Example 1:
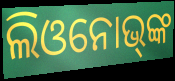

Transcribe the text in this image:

ଲିଓନୋଭ୍‌ଙ୍କ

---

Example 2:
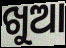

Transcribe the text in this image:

ଖୁଆ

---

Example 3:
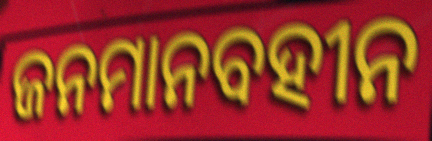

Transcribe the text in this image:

ଜନମାନବହୀନ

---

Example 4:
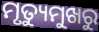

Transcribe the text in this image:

ମୃତ୍ୟୁମୁଖରୁ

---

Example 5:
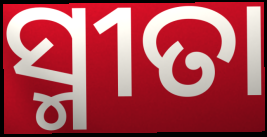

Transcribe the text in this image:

ସ୍ମୀତା